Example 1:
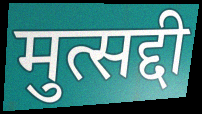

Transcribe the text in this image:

मुत्सद्दी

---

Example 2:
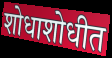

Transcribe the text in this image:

शोधाशोधीत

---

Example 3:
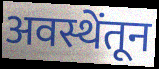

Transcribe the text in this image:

अवस्थेंतून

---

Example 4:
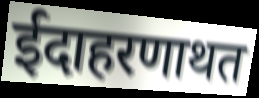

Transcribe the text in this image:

ईदाहरणाथत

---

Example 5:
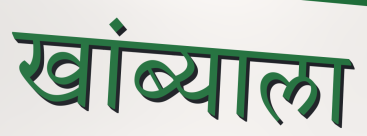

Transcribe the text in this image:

खांब्याला